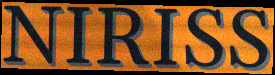
NIRISS